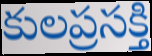
కులప్రసక్తి